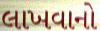
લાખવાનો